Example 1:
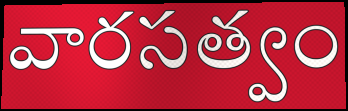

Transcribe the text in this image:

వారసత్వం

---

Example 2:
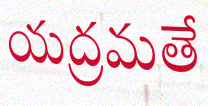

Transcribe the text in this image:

యద్రమతే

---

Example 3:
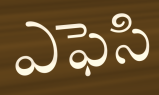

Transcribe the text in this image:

ఎఫెసి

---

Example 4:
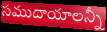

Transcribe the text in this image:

సముదాయాలన్నీ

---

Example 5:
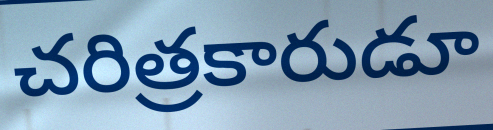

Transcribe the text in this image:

చరిత్రకారుడూ